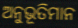
ଅନୁଭୂତିମାନ